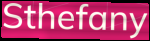
Sthefany